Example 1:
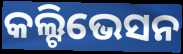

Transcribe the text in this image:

କଲ୍ଟିଭେସନ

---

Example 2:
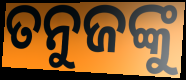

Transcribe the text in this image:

ତନୁଜଙ୍କୁ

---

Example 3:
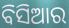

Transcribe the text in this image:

ବିସିଆର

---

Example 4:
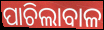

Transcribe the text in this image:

ପାଚିଲାବାଳ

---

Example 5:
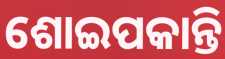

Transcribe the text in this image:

ଶୋଇପକାନ୍ତି